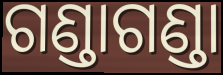
ଗଣ୍ଡାଗଣ୍ଡା